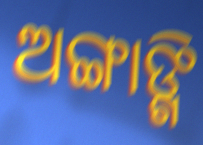
ଅଙ୍ଗାଙ୍ଗି